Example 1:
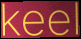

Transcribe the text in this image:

keel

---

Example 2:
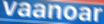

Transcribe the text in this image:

vaanoar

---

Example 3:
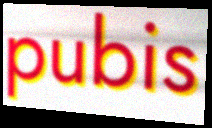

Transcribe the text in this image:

pubis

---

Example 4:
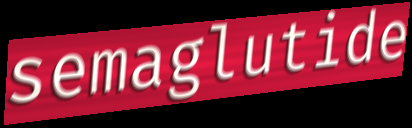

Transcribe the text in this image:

semaglutide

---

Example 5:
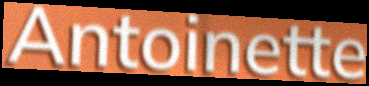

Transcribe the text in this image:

Antoinette